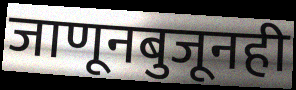
जाणूनबुजूनही